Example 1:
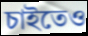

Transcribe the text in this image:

চাইতেও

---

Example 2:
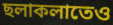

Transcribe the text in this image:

ছলাকলাতেও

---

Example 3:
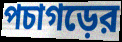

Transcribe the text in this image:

পচাগড়ের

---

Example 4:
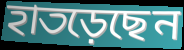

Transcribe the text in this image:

হাতড়েছেন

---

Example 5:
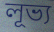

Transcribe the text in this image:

লূভ্য